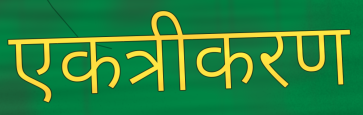
एकत्रीकरण